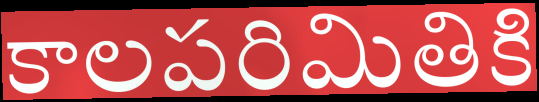
కాలపరిమితికి